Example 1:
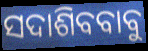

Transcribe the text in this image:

ସଦାଶିବବାବୁ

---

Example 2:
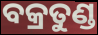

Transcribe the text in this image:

ବକ୍ରତୁଣ୍ଡ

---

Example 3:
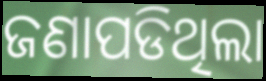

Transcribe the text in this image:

ଜଣାପଡିଥିଲା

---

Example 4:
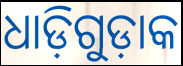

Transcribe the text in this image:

ଧାଡ଼ିଗୁଡ଼ାକ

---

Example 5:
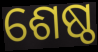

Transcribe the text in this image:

ଶେଷ୍ଠ